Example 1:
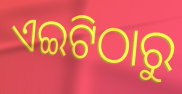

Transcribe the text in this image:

ଏଇଟିଠାରୁ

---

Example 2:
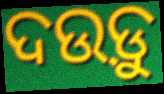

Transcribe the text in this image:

ଦଉଡ଼ୁ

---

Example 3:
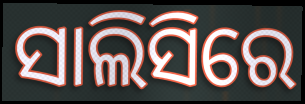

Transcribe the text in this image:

ସାଲିସିରେ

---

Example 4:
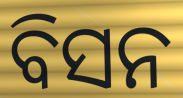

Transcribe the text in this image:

ବିସନ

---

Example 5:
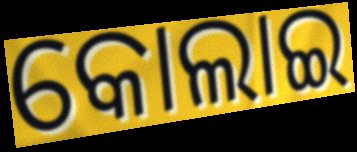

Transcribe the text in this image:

କୋଲାଇ